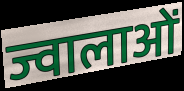
ज्वालाओं